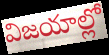
విజయాల్లో